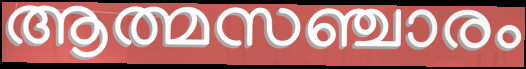
ആത്മസഞ്ചാരം